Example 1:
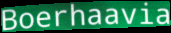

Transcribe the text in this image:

Boerhaavia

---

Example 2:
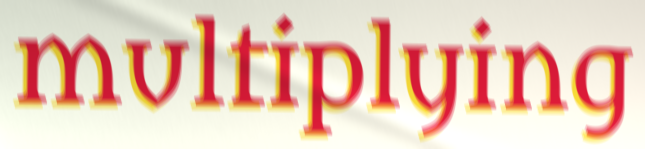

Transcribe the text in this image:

multiplying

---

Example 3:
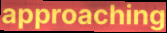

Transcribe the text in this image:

approaching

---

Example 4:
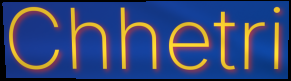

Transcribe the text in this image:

Chhetri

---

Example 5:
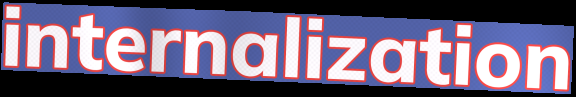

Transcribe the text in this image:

internalization